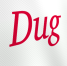
Dug